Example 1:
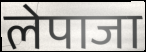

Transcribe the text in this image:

लेपाजा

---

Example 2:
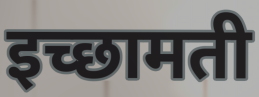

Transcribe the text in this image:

इच्छामती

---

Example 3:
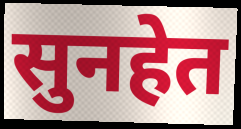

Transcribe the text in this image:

सुनहेत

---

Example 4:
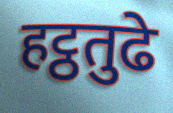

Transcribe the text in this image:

हट्ठतुढे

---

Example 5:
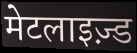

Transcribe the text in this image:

मेटलाइज़्ड